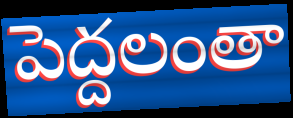
పెద్దలంతా